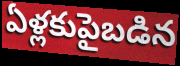
ఏళ్లకుపైబడిన